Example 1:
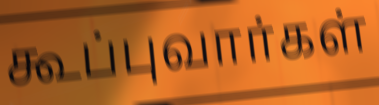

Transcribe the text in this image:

கூப்புவார்கள்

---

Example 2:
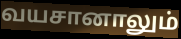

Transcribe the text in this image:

வயசானாலும்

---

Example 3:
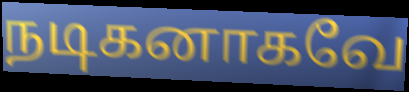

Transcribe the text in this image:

நடிகனாகவே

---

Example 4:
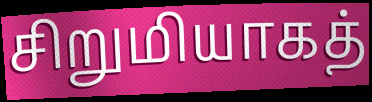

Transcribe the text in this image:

சிறுமியாகத்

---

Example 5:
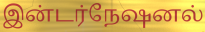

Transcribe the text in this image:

இன்டர்நேஷனல்